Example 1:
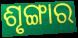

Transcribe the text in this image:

ଶୃଙ୍ଗାର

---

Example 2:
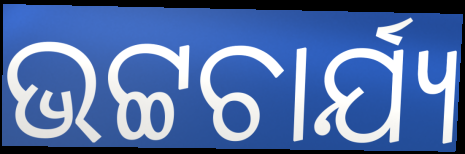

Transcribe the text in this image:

ଭଟ୍ଟଚାର୍ଯ୍ୟ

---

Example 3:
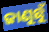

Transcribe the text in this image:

ଜାଣୁଛୁଁ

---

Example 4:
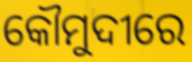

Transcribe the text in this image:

କୌମୁଦୀରେ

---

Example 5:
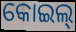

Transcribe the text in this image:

କୋଇଲ୍